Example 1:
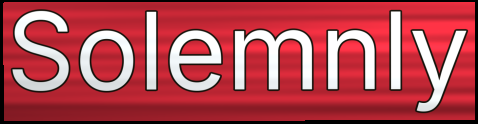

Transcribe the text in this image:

Solemnly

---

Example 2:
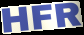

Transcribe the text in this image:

HFR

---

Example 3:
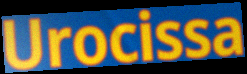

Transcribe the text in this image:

Urocissa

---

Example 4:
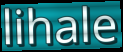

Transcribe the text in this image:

lihale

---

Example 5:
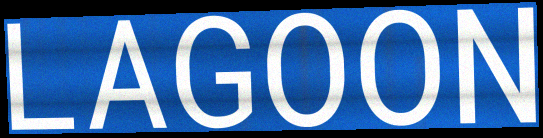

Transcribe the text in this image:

LAGOON